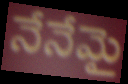
నేనేమై